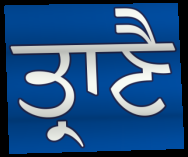
ਤ੍ਰਾਣੈ